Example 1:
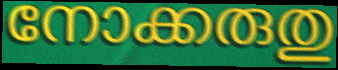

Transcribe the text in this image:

നോക്കരുതു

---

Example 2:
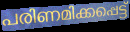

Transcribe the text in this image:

പരിണമിക്കപ്പെട്ട്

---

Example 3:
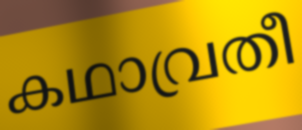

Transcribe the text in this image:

കഥാവ്രതീ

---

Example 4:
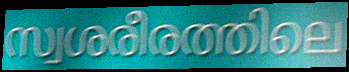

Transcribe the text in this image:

സ്വശരീരത്തിലെ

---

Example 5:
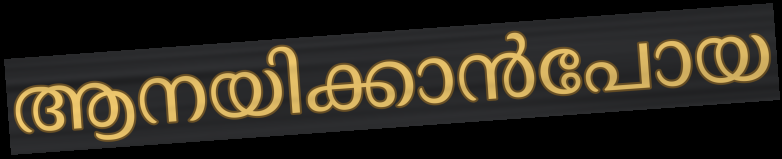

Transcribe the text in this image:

ആനയിക്കാൻപോയ